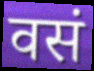
वसं